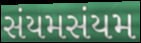
સંયમસંયમ